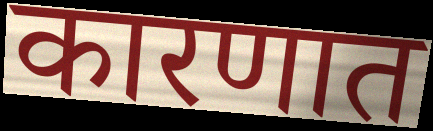
कारणात